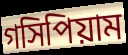
গসিপিয়াম